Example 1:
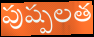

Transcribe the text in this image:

పుష్పలత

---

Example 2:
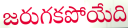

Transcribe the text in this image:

జరుగకపోయేది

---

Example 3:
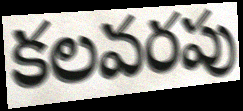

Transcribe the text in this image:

కలవరపు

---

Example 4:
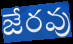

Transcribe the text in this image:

జేరవు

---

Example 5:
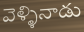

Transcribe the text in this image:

వెళ్ళినాడు